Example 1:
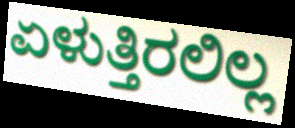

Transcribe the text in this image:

ಏಳುತ್ತಿರಲಿಲ್ಲ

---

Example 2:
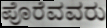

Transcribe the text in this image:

ಪೊರೆವವರು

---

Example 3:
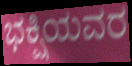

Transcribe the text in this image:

ಭಕ್ಷಿಯವರ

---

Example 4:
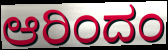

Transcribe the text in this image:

ಆರಿಂದಂ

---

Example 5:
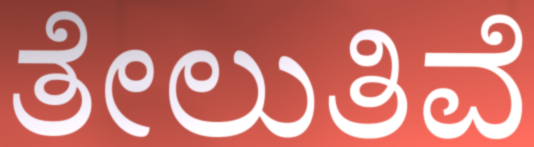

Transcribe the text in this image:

ತೇಲುತಿವೆ